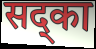
सद्का